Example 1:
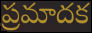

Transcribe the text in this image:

ప్రమాదక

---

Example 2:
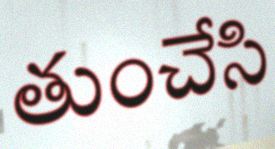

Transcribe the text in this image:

తుంచేసి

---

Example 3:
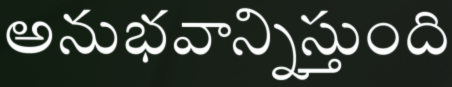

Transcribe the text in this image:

అనుభవాన్నిస్తుంది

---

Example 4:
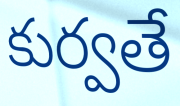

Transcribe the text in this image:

కుర్వతే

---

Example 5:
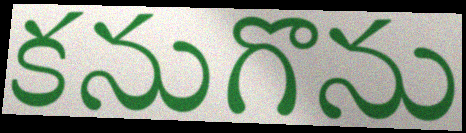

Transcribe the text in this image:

కనుగొను